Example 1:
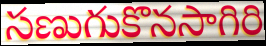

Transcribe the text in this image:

సణుగుకొనసాగిరి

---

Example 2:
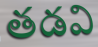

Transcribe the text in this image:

తడవి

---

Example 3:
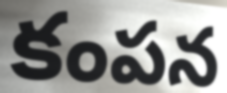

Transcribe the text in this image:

కంపన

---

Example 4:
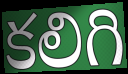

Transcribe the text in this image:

కలిగి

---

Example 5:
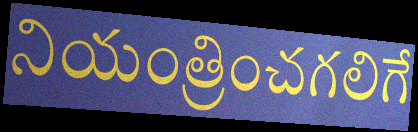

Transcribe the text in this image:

నియంత్రించగలిగే